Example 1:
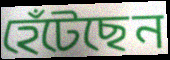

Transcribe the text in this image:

হেঁটেছেন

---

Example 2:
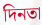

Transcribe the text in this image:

দিনতা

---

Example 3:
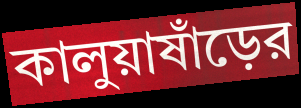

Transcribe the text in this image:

কালুয়াষাঁড়ের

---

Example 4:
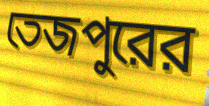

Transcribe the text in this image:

তেজপুরের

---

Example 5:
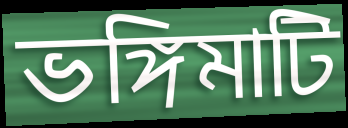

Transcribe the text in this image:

ভঙ্গিমাটি